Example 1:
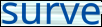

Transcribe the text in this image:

surve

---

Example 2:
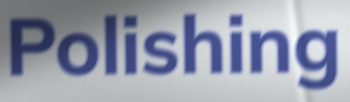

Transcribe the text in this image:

Polishing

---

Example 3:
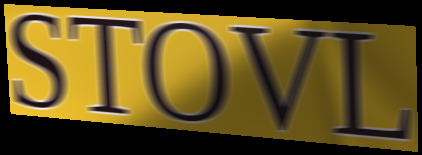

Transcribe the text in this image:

STOVL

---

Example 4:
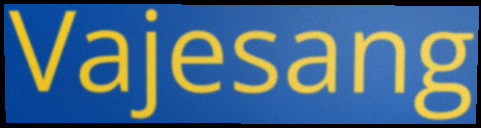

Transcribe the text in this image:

Vajesang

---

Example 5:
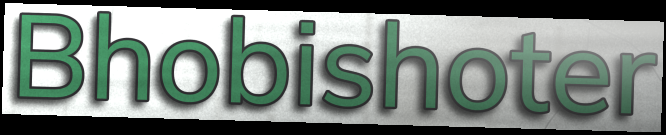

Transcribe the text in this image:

Bhobishoter